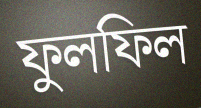
ফুলফিল